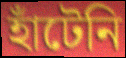
হাঁটেনি